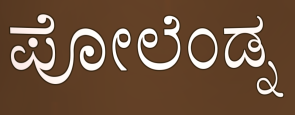
ಪೋಲೆಂಡ್ನ